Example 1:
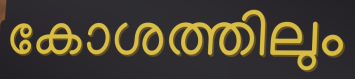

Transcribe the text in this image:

കോശത്തിലും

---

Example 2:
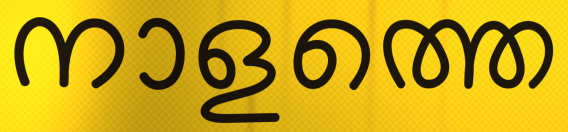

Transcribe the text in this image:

നാളത്തെ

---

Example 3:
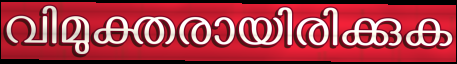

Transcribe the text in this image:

വിമുക്തരായിരിക്കുക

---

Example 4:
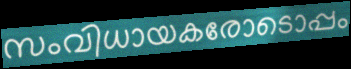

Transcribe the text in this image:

സംവിധായകരോടൊപ്പം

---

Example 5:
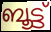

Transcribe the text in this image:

ബൂട്ട്